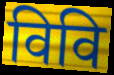
विवि